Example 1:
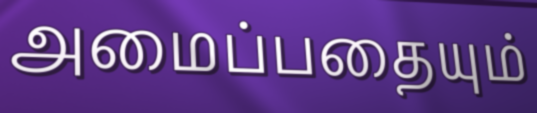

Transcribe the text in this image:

அமைப்பதையும்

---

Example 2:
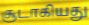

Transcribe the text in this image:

சூடாகியது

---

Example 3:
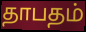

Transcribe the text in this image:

தாபதம்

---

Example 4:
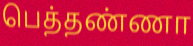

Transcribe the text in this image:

பெத்தண்ணா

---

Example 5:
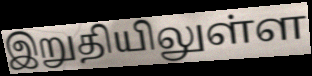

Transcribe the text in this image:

இறுதியிலுள்ள